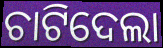
ଚାଟିଦେଲା